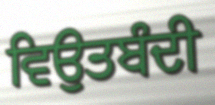
ਵਿਉਤਬੰਦੀ